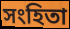
সংহিতা